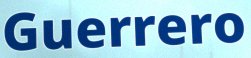
Guerrero